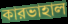
কারভাহাল